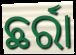
ଛର୍ରା